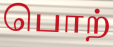
பொற்